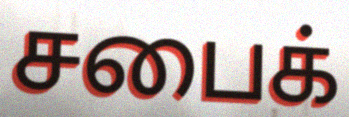
சபைக்